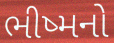
ભીષ્મનો